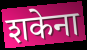
शकेना